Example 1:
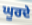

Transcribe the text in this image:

ਘੂਰਦੇ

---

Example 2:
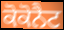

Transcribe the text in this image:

ਕੋਕੋਨੈਟ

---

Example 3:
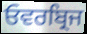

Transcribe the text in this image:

ਓਵਰਬ੍ਰਿਜ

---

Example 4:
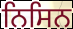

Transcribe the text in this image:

ਨਿਸਿਨ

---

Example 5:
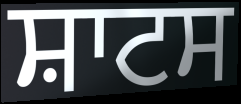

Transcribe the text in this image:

ਸ਼ਾਟਸ